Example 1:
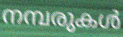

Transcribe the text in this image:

നമ്പരുകൾ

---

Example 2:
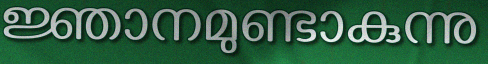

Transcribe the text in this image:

ജ്ഞാനമുണ്ടാകുന്നു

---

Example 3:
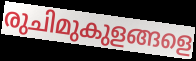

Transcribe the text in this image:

രുചിമുകുളങ്ങളെ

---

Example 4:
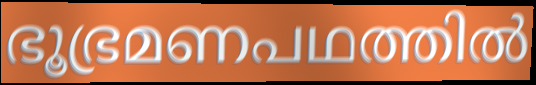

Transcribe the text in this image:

ഭൂഭ്രമണപഥത്തിൽ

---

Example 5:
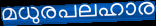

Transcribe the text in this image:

മധുരപലഹാര